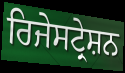
ਰਿਜੇਸਟ੍ਰੇਸ਼ਨ